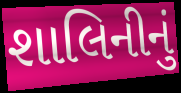
શાલિનીનું